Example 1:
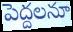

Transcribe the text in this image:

పెద్దలనూ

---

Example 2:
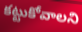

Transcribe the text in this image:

కట్టుకోవాలని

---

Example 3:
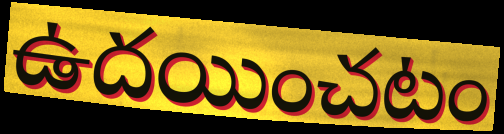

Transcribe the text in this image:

ఉదయించటం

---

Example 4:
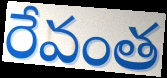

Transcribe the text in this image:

రేవంత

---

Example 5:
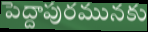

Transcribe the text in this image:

పెద్దాపురమునకు